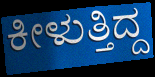
ಕೀಳುತ್ತಿದ್ದ